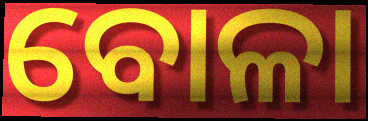
ବୋଳା